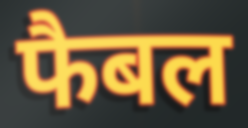
फैबल